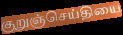
குறுஞ்செய்தியை